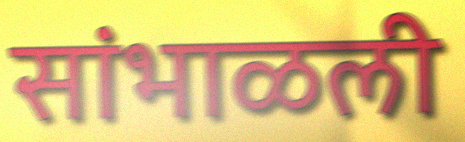
सांभाळली